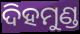
ଦିହମୁଣ୍ଡ